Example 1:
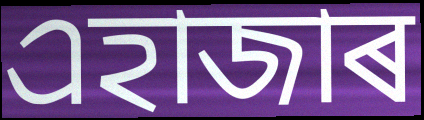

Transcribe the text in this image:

এহাজাৰ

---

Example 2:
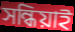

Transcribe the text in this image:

সন্ধিয়াই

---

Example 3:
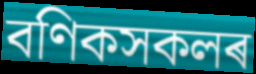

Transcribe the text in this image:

বণিকসকলৰ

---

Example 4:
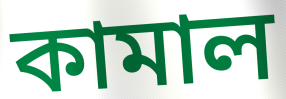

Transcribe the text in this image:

কামাল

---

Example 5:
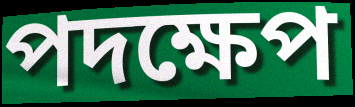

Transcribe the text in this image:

পদক্ষেপ